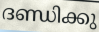
ദണ്ഡിക്കു